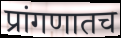
प्रांगणातच